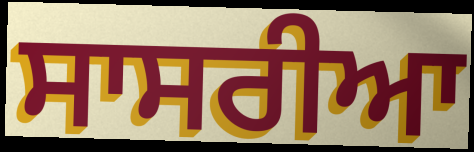
ਸਾਸਰੀਆ